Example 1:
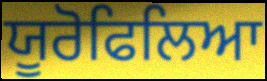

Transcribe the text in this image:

ਯੂਰੋਫਿਲਿਆ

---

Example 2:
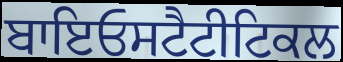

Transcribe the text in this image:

ਬਾਇਓਸਟੈਟੀਟਿਕਲ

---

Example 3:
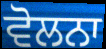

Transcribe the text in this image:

ਵੋਲਨਾ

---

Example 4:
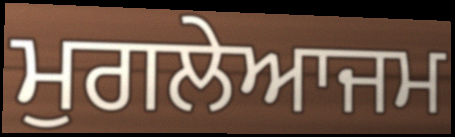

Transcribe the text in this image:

ਮੁਗਲੇਆਜਮ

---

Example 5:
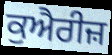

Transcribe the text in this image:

ਕੁਐਰੀਜ਼